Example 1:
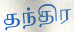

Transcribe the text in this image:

தந்திர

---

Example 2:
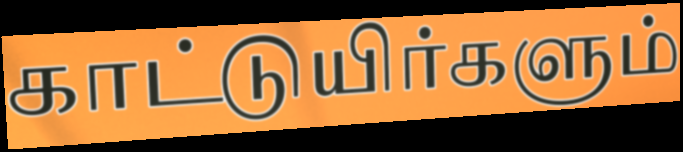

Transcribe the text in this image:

காட்டுயிர்களும்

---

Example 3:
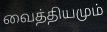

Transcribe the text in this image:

வைத்தியமும்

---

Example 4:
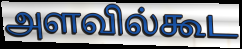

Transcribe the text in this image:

அளவில்கூட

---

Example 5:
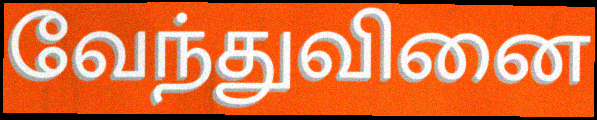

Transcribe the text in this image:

வேந்துவினை